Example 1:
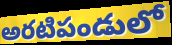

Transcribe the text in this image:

అరటిపండులో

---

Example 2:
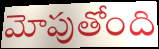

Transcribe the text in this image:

మోపుతోంది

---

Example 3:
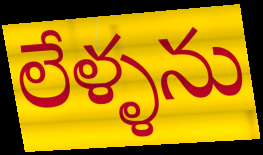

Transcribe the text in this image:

లేళ్ళను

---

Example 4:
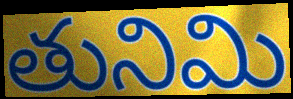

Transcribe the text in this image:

తునిమి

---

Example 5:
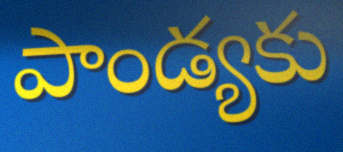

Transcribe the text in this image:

పాండ్యకు